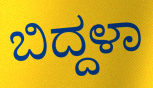
ಬಿದ್ದಳಾ